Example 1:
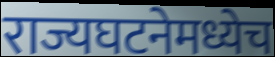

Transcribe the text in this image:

राज्यघटनेमध्येच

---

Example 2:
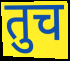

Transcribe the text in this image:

तुच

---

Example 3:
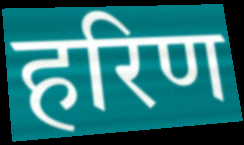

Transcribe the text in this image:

हरिण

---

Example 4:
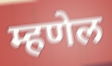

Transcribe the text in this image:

म्हणेल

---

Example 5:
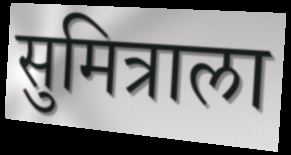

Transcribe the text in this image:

सुमित्राला